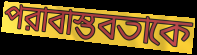
পরাবাস্তবতাকে